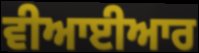
ਵੀਆਈਆਰ